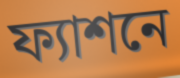
ফ্যাশনে